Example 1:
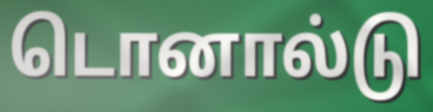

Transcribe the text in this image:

டொனால்டு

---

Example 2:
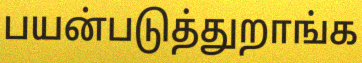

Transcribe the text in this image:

பயன்படுத்துறாங்க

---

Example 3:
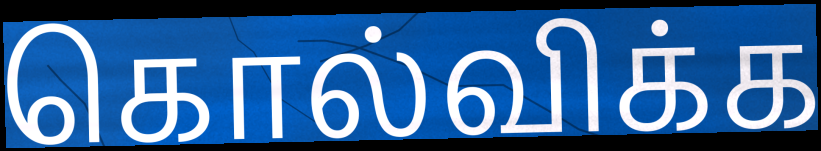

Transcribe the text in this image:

கொல்விக்க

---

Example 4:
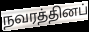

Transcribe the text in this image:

நவரத்தினப்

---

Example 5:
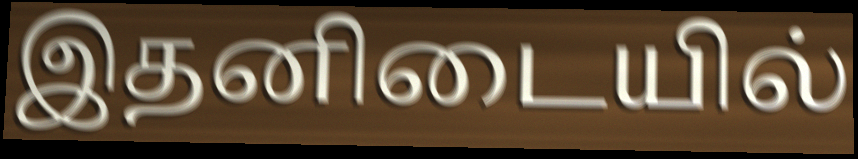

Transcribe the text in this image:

இதனிடையில்